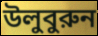
উলুবুরুন